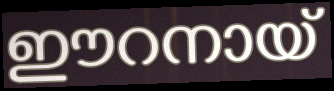
ഈറനായ്